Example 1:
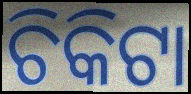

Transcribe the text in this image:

ଚିକିଟା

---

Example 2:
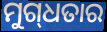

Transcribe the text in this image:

ମୁଗ୍‍ଧତାର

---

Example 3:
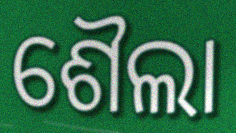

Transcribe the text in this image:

ଶୈଲା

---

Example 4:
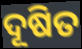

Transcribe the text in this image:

ଦୂଷିତ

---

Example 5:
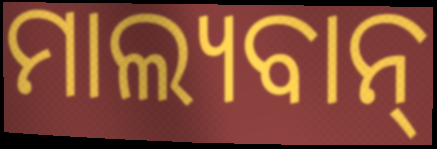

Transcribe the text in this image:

ମାଲ୍ୟବାନ୍